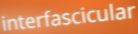
interfascicular